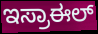
ಇಸ್ರಾಈಲ್